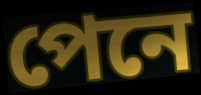
পেনে